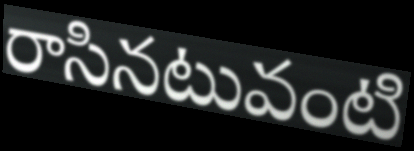
రాసినటువంటి